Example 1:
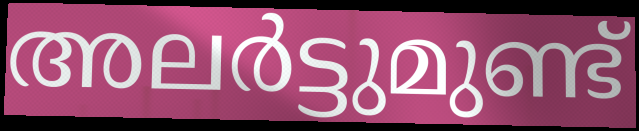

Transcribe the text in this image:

അലർട്ടുമുണ്ട്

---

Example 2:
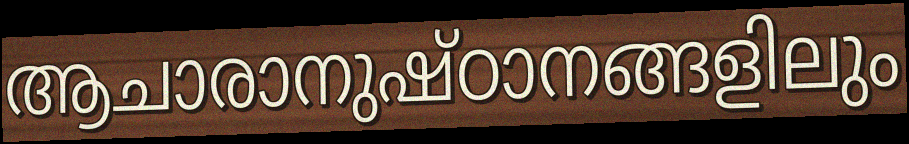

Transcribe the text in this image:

ആചാരാനുഷ്ഠാനങ്ങളിലും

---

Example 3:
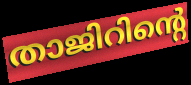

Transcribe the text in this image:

താജിറിന്റെ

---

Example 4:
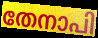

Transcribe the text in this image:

തേനാപി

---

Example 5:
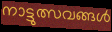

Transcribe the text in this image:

നാട്ടുത്സവങ്ങൾ